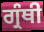
ਗ੍ਰੰਥੀ